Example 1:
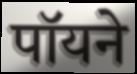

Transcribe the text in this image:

पॉयने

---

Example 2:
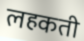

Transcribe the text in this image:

लहकती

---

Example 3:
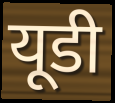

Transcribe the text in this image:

यूडी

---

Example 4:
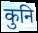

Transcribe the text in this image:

कुनि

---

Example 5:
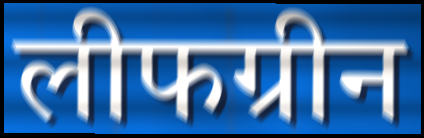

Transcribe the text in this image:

लीफग्रीन